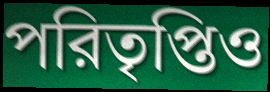
পরিতৃপ্তিও